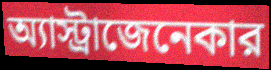
অ্যাস্ট্রাজেনেকার